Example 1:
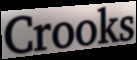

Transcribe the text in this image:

Crooks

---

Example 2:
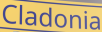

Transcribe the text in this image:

Cladonia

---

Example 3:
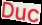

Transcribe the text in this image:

Duc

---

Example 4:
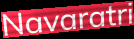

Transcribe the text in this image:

Navaratri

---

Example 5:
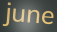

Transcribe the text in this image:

june